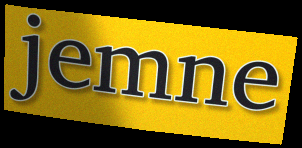
jemne